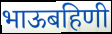
भाऊबहिणी